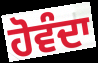
ਹੋਵੰਦਾ